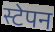
स्टेपन